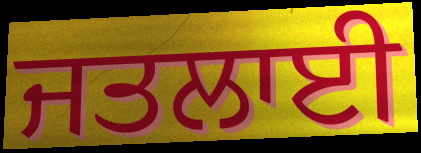
ਜਤਲਾਈ